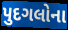
પુદગલોના